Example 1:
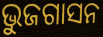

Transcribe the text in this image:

ଭୁଜଗାସନ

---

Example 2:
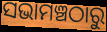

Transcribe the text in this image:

ସଭାମଞ୍ଚଠାରୁ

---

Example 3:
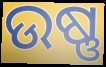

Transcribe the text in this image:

ଉଷ୍ଣ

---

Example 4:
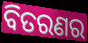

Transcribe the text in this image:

ବିତରଣର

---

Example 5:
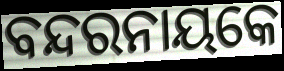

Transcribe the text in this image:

ବନ୍ଦରନାୟକେ